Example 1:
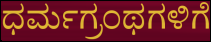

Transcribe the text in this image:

ಧರ್ಮಗ್ರಂಥಗಳಿಗೆ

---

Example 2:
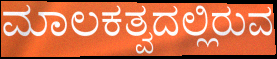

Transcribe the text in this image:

ಮಾಲಕತ್ವದಲ್ಲಿರುವ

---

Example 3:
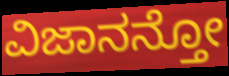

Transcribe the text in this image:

ವಿಜಾನನ್ತೋ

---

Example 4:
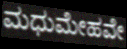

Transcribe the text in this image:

ಮಧುಮೇಹವೇ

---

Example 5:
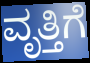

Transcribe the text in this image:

ವೃತ್ತಿಗೆ